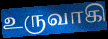
உருவாகி